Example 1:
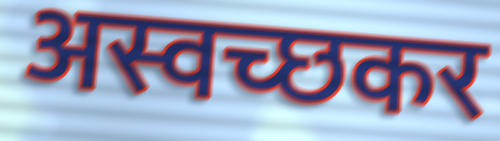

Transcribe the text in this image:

अस्वच्छकर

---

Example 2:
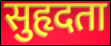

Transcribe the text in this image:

सुहृदता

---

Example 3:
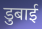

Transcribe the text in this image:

डुबाई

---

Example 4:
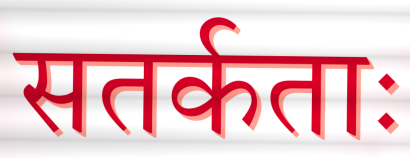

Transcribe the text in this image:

सतर्कताः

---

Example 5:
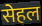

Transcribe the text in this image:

सेहल